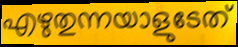
എഴുതുന്നയാളുടേത്